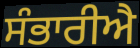
ਸੰਭਾਰੀਐ